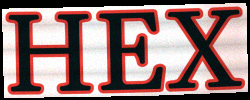
HEX